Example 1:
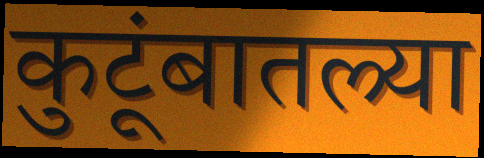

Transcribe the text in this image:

कुटूंबातल्या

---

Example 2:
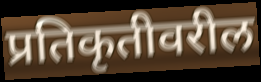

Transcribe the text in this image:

प्रतिकृतीवरील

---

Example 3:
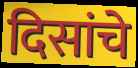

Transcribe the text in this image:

दिसांचे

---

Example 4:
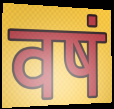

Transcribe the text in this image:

वषं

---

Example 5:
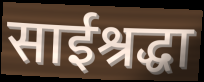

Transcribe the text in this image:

साईश्रद्धा